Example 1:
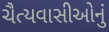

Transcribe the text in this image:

ચૈત્યવાસીઓનું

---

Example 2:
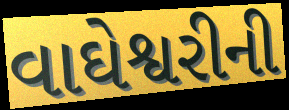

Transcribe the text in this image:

વાઘેશ્વરીની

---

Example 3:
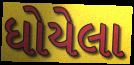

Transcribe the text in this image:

ધોયેલા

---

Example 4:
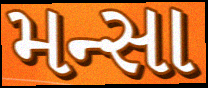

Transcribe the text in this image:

મન્સા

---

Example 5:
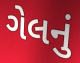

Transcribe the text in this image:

ગેલનું